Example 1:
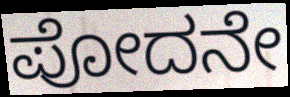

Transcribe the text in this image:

ಪೋದನೇ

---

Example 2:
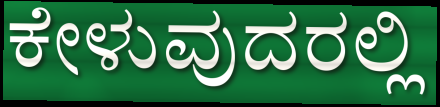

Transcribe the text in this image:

ಕೇಳುವುದರಲ್ಲಿ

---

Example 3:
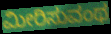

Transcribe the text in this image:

ಮೀರಿಸುವಂಥ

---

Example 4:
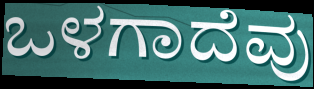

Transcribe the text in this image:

ಒಳಗಾದೆವು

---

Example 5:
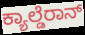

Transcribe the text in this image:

ಕ್ಯಾಲ್ಡೆರಾನ್